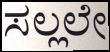
ಸಲ್ಲಲೇ